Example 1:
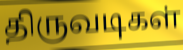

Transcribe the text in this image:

திருவடிகள்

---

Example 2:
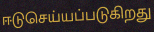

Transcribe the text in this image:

ஈடுசெய்யப்படுகிறது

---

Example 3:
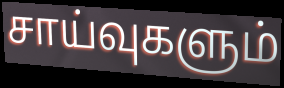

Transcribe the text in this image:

சாய்வுகளும்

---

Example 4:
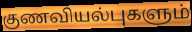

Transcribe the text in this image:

குணவியல்புகளும்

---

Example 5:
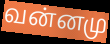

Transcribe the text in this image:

வன்னமு